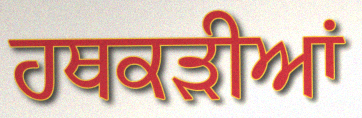
ਹਥਕੜੀਆਂ